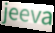
jeeva